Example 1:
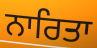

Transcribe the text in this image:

ਨਾਰਿਤਾ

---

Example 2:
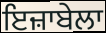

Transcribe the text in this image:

ਇਜ਼ਾਬੇਲਾ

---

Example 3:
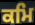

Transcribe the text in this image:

ਕਮਿ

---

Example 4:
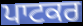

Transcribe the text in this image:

ਪਾਟਕਰ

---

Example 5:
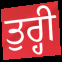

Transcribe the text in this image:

ਤੁਰ੍ਹੀ